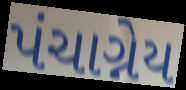
પંચાગ્નેય